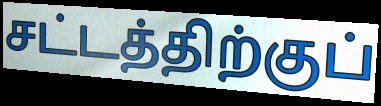
சட்டத்திற்குப்